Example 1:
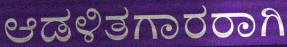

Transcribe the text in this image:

ಆಡಳಿತಗಾರರಾಗಿ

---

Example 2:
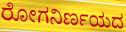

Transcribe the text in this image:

ರೋಗನಿರ್ಣಯದ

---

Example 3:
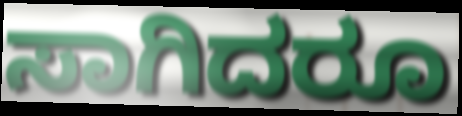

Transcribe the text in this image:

ಸಾಗಿದರೂ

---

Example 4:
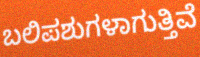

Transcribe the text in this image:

ಬಲಿಪಶುಗಳಾಗುತ್ತಿವೆ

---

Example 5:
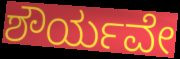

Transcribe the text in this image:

ಶೌರ್ಯವೇ